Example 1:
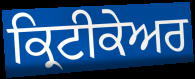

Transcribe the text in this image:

ਕ੍ਰਿਟੀਕੇਅਰ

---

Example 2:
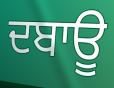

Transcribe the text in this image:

ਦਬਾਊ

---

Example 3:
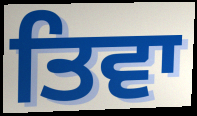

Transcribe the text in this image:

ਤਿਵਾ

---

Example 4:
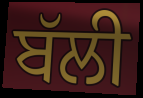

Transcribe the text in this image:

ਬੱਲੀ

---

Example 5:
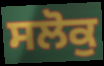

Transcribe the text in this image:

ਸਲੋਕੁ